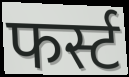
फर्स्‍ट